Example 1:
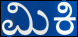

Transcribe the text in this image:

ಮಿಕಿ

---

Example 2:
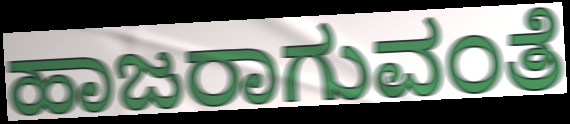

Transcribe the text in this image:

ಹಾಜರಾಗುವಂತೆ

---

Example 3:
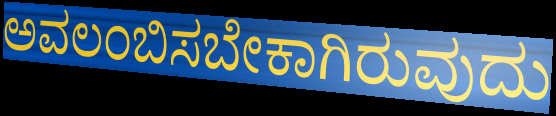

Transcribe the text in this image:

ಅವಲಂಬಿಸಬೇಕಾಗಿರುವುದು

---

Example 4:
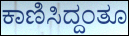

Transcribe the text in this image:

ಕಾಣಿಸಿದ್ದಂತೂ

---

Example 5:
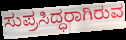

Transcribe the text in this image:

ಸುಪ್ರಸಿದ್ಧರಾಗಿರುವ